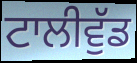
ਟਾਲੀਵੁੱਡ